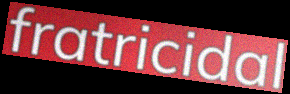
fratricidal